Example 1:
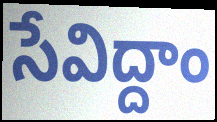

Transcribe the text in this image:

సేవిద్దాం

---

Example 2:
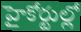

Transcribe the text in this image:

హైకోర్టుల్లో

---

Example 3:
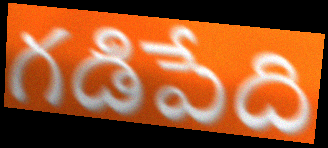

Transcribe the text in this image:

గడిపేది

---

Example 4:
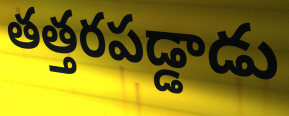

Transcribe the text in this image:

తత్తరపడ్డాడు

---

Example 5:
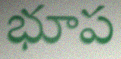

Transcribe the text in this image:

భూప